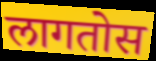
लागतोस